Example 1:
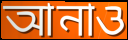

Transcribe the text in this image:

আনাও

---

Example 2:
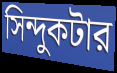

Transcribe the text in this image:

সিন্দুকটার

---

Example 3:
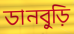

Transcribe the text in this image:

ডানবুড়ি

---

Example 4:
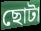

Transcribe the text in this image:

ছোটা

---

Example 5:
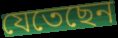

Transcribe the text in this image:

যেতেছেন